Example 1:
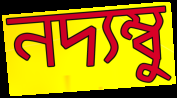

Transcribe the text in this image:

নদ্যম্বু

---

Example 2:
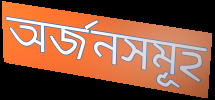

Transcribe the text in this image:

অর্জনসমূহ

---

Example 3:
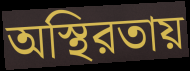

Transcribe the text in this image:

অস্থিরতায়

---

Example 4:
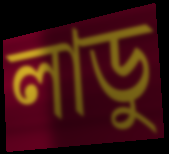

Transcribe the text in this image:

লাডু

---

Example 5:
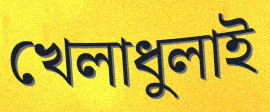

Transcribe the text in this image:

খেলাধুলাই